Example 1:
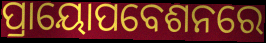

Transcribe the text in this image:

ପ୍ରାୟୋପବେଶନରେ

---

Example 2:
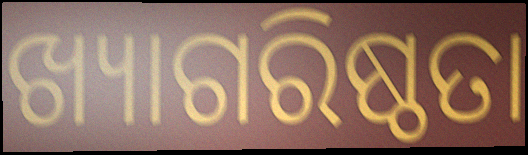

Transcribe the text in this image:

ଖ୍ୟାଗରିଷ୍ଠତା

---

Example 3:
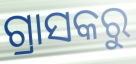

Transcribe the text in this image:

ଗ୍ରାସକରୁ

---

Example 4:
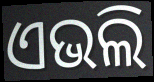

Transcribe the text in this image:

ଏଭଲି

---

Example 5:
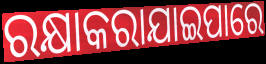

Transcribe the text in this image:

ରକ୍ଷାକରାଯାଇପାରେ